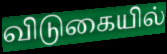
விடுகையில்